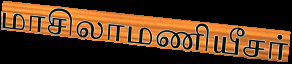
மாசிலாமணியீசர்